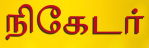
நிகேடர்